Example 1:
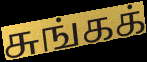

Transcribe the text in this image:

சுங்கக்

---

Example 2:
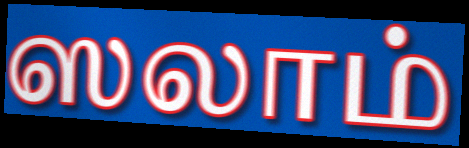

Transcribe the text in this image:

ஸலாம்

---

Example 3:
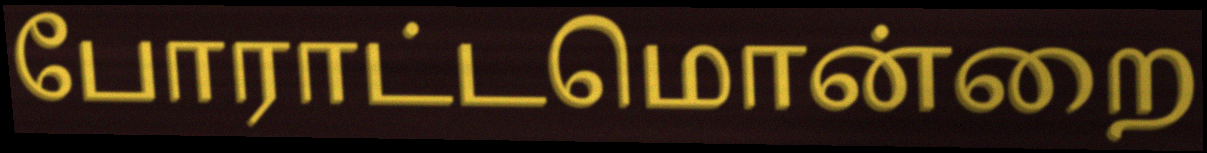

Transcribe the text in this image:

போராட்டமொன்றை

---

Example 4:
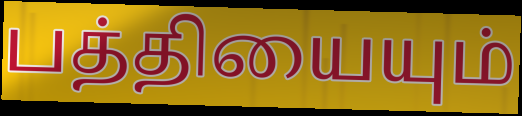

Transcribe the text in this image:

பத்தியையும்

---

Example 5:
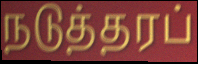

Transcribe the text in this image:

நடுத்தரப்